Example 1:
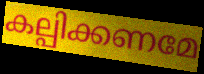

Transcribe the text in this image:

കല്പിക്കണമേ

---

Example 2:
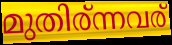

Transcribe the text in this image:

മുതിര്ന്നവര്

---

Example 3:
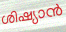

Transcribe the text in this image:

ശിഷ്യാൻ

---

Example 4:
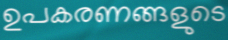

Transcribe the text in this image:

ഉപകരണങ്ങളുടെ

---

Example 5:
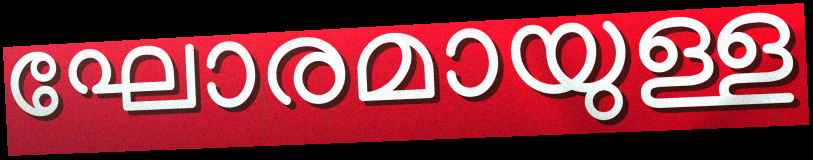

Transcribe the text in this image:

ഘോരമായുള്ള